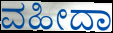
ವಹೀದಾ